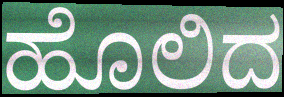
ಹೊಲಿದ